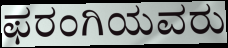
ಫರಂಗಿಯವರು